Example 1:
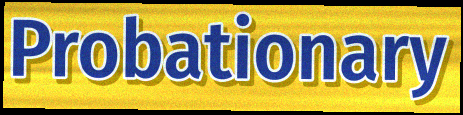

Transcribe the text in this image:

Probationary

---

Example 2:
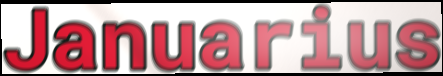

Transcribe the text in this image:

Januarius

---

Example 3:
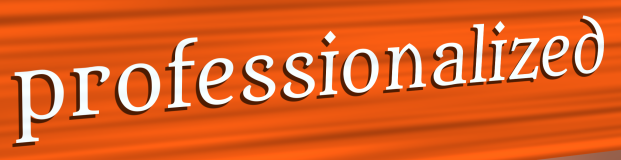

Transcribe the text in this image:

professionalized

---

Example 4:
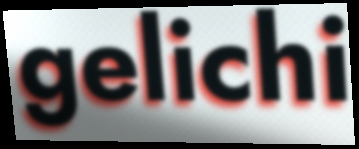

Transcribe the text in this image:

gelichi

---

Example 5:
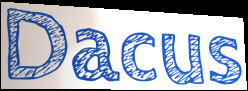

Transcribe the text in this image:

Dacus